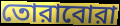
তোরাবোরা